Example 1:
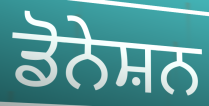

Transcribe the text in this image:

ਡੋਨੇਸ਼ਨ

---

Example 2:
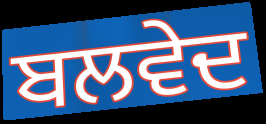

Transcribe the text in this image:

ਬਲਵੇਦ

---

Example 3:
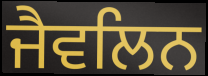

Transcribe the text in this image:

ਜੈਵਲਿਨ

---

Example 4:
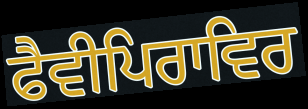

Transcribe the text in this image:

ਫੈਵੀਪਿਰਾਵਿਰ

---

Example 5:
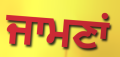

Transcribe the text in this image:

ਜਾਮਣਾਂ